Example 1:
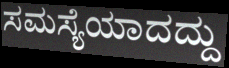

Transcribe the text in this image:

ಸಮಸ್ಯೆಯಾದದ್ದು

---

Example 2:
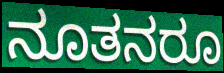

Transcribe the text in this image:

ನೂತನರೂ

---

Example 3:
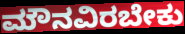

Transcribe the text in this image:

ಮೌನವಿರಬೇಕು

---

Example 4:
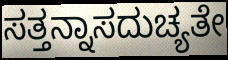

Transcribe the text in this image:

ಸತ್ತನ್ನಾಸದುಚ್ಯತೇ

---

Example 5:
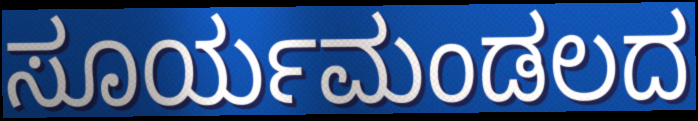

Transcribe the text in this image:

ಸೂರ್ಯಮಂಡಲದ